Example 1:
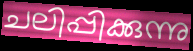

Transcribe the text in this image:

ചലിപ്പിക്കുന്നു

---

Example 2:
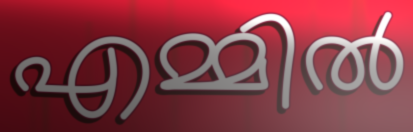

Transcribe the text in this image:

എമ്മിൽ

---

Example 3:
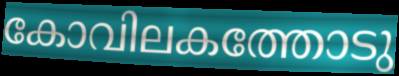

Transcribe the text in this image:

കോവിലകത്തോടു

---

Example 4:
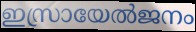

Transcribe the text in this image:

ഇസ്രായേൽജനം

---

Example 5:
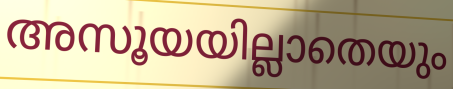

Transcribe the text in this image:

അസൂയയില്ലാതെയും